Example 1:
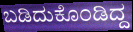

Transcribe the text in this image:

ಬಡಿದುಕೊಂಡಿದ್ದ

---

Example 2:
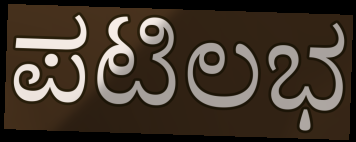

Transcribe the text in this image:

ಪಟಿಲಭ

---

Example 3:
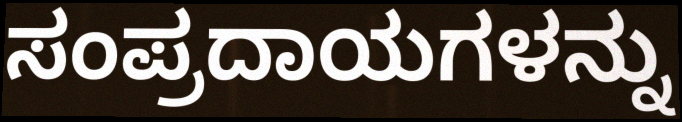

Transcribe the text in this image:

ಸಂಪ್ರದಾಯಗಳನ್ನು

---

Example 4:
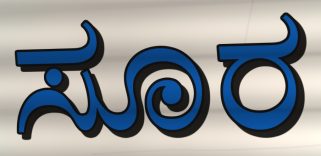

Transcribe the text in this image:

ಸೂರ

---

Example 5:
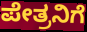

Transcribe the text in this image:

ಪೇತ್ರನಿಗೆ